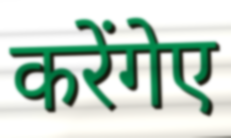
करेंगेए